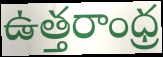
ఉత్తరాంధ్ర